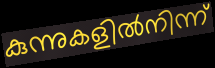
കുന്നുകളിൽനിന്ന്